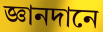
জ্ঞানদানে